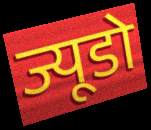
ज्यूडो